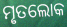
ମୃତଲୋକ